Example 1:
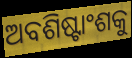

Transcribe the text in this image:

ଅବଶିଷ୍ଟାଂଶକୁ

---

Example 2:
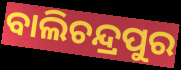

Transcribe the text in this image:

ବାଲିଚନ୍ଦ୍ରପୁର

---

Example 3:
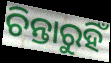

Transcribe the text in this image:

ଚିନ୍ତାରୁହିଁ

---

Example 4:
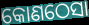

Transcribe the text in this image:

କୋଣଠେସା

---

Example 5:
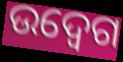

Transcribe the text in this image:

ଉଦ୍ବେଗ